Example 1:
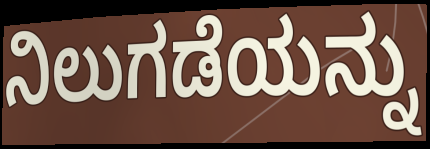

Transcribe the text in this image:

ನಿಲುಗಡೆಯನ್ನು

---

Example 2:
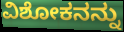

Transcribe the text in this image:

ವಿಶೋಕನನ್ನು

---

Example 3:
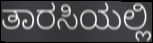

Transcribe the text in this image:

ತಾರಸಿಯಲ್ಲಿ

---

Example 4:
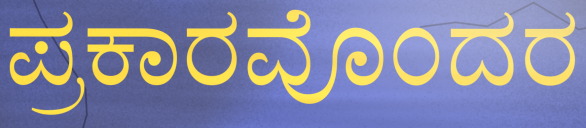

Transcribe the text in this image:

ಪ್ರಕಾರವೊಂದರ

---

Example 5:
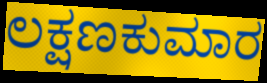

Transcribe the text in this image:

ಲಕ್ಷಣಕುಮಾರ